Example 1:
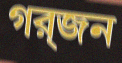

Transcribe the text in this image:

গর্‍জন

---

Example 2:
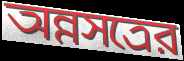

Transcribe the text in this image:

অন্নসত্রের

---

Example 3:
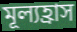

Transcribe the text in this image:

মূল্যহ্রাস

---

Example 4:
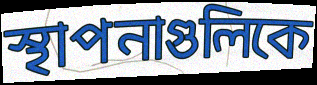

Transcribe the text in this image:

স্থাপনাগুলিকে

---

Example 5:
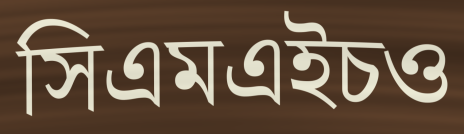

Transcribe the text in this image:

সিএমএইচও